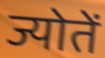
ज्योतें